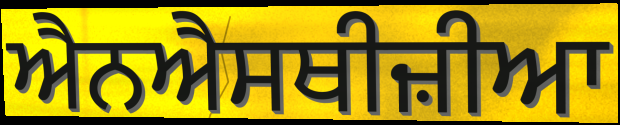
ਐਨਐਸਥੀਜ਼ੀਆ